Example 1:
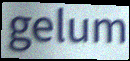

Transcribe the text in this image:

gelum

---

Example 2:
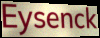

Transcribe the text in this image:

Eysenck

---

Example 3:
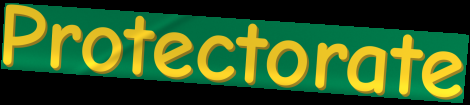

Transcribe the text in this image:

Protectorate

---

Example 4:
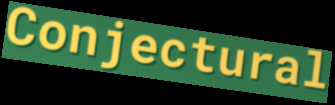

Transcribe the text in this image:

Conjectural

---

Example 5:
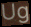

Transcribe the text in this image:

Ug